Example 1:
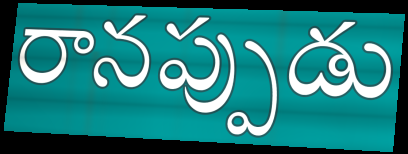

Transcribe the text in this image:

రానప్పుడు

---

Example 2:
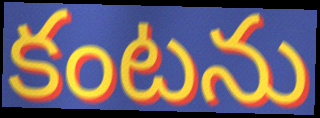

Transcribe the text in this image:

కంటను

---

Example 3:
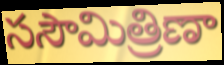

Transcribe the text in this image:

ససౌమిత్రిణా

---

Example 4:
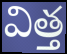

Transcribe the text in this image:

విత్త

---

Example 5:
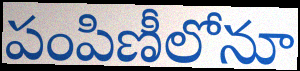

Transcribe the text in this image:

పంపిణీలోనూ